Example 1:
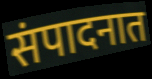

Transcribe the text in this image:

संपादनात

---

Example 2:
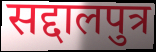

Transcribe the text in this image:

सद्दालपुत्र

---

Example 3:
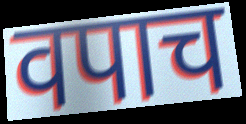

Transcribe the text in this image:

वपाच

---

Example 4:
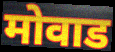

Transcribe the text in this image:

मोवाड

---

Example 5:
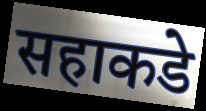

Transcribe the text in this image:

सहाकडे